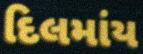
દિલમાંય